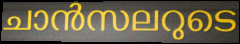
ചാൻസലറുടെ